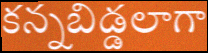
కన్నబిడ్డలాగా